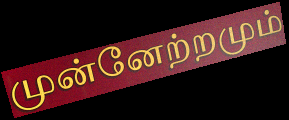
முன்னேற்றமும்